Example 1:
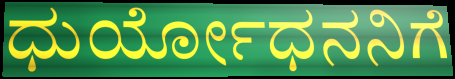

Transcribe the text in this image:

ಧುರ್ಯೋಧನನಿಗೆ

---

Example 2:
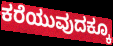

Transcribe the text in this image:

ಕರೆಯುವುದಕ್ಕೂ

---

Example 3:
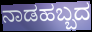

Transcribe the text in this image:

ನಾಡಹಬ್ಬದ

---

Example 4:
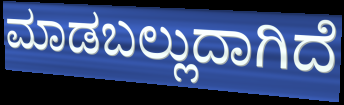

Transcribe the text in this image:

ಮಾಡಬಲ್ಲುದಾಗಿದೆ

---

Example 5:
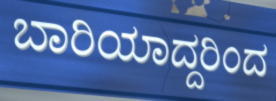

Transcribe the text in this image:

ಬಾರಿಯಾದ್ದರಿಂದ